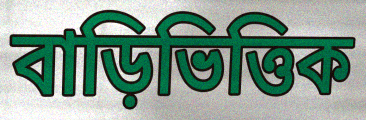
বাড়িভিত্তিক